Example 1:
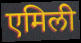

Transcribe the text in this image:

एमिली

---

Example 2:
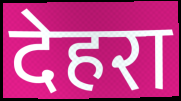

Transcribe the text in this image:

देहरा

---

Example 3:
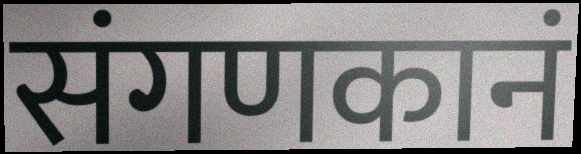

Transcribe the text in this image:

संगणकानं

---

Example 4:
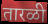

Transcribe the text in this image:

तारळी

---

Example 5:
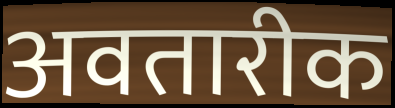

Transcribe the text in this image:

अवतारीक